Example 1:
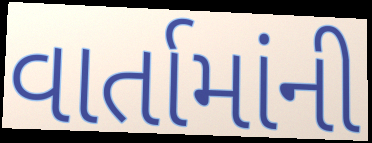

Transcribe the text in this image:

વાર્તામાંની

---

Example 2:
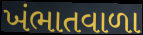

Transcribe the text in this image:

ખંભાતવાળા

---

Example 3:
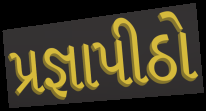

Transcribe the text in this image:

પ્રજ્ઞાપીઠો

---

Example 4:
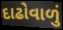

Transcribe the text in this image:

દાઢોવાળું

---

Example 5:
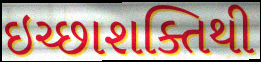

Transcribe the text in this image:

ઇચ્છાશક્તિથી